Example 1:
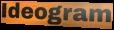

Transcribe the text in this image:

Ideogram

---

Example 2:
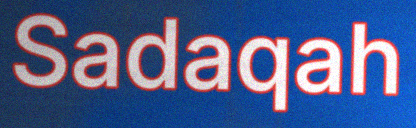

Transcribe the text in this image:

Sadaqah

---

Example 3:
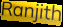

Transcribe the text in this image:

Ranjith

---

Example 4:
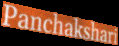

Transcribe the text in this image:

Panchakshari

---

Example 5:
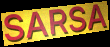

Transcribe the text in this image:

SARSA